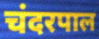
चंदरपाल